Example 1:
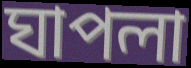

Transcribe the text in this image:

ঘাপলা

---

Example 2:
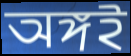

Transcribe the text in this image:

অঙ্গই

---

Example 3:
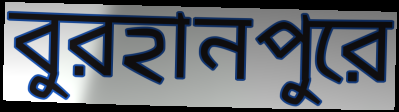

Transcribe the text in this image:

বুরহানপুরে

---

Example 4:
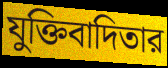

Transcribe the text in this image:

যুক্তিবাদিতার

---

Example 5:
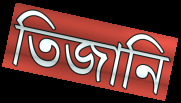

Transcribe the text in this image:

তিজানি